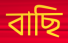
বাছি